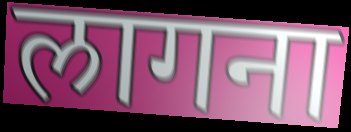
लागना